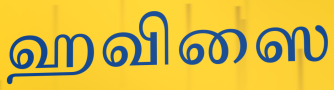
ஹவிஸை